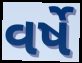
વર્ષે